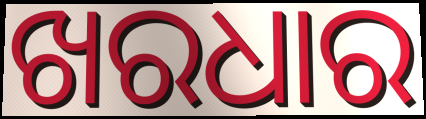
ଖରଧାର